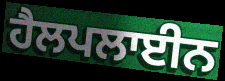
ਹੈਲਪਲਾਈਨ